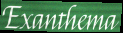
Exanthema